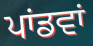
ਪਾਂਡਵਾਂ